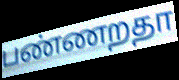
பண்ணறதா